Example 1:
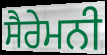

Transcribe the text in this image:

ਸੈਰੇਮਨੀ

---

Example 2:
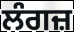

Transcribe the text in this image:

ਲੰਗਜ਼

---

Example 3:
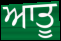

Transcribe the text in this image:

ਆਤੂ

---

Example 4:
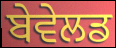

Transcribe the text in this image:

ਬੇਵੇਲਡ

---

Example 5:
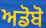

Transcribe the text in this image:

ਅਡੋਬੋ